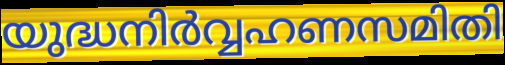
യുദ്ധനിർവ്വഹണസമിതി